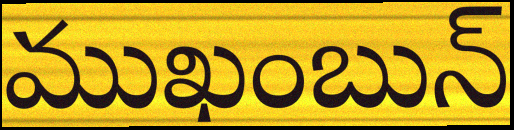
ముఖంబున్